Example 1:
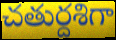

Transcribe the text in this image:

చతుర్దశిగా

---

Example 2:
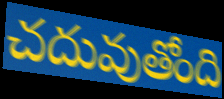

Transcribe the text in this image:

చదువుతోంది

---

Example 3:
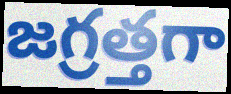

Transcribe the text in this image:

జగ్రత్తగా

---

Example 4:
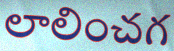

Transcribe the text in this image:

లాలించగ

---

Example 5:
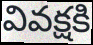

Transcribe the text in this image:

వివక్షకి